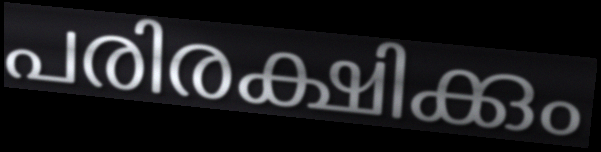
പരിരക്ഷിക്കും